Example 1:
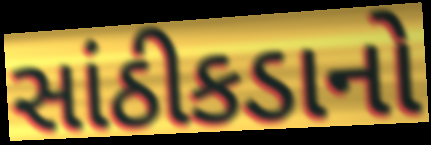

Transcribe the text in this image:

સાંઠીકડાનો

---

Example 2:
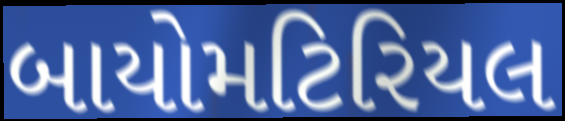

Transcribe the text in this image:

બાયોમટિરિયલ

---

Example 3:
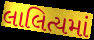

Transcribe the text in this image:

લાલિત્યમાં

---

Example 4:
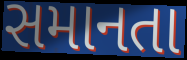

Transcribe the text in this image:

સમાનતા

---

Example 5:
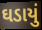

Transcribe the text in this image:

ઘડાયું